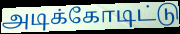
அடிக்கோடிட்டு